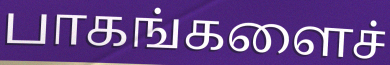
பாகங்களைச்